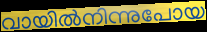
വായിൽനിന്നുപോയ